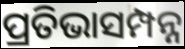
ପ୍ରତିଭାସମ୍ପନ୍ନ